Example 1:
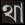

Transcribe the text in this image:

থা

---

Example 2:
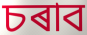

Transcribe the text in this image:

চৰাব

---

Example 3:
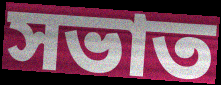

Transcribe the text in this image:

সভাত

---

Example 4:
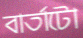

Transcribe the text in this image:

বাৰ্তাটো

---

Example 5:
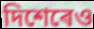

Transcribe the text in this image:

দিশেৰেও